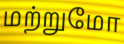
மற்றுமோ